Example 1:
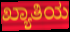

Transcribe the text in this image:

ಖ್ಯಾತಿಯ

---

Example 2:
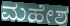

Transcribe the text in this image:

ಮಹೇಶ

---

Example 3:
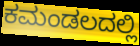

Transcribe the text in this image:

ಕಮಂಡಲದಲ್ಲಿ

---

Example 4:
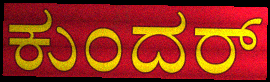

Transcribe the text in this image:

ಕುಂದರ್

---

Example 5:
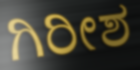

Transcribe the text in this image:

ಗಿರೀಶ